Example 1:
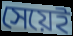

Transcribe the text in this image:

সেয়েই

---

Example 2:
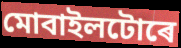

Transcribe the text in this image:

মোবাইলটোৰে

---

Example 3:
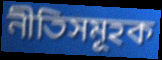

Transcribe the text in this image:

নীতিসমূহক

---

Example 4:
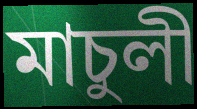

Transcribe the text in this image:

মাচুলী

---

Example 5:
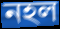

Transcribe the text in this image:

নহল